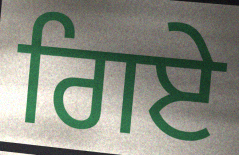
ਗਿਏ